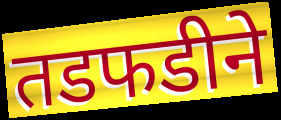
तडफडीने